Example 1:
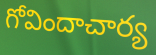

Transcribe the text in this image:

గోవిందాచార్య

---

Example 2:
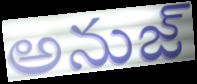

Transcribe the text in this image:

అనుజ్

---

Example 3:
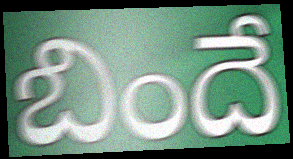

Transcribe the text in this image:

బిందే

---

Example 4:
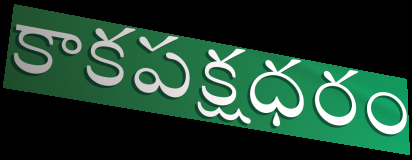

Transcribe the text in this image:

కాకపక్షధరం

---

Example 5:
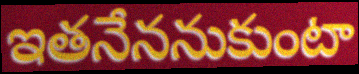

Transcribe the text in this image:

ఇతనేననుకుంటా